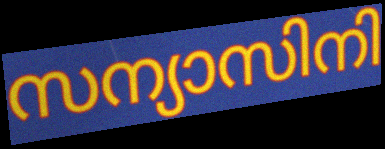
സന്യാസിനി